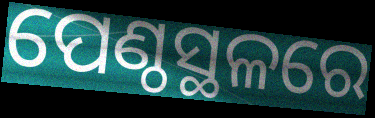
ପେଣ୍ଠସ୍ଥଳରେ